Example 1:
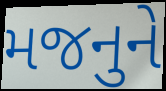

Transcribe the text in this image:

મજનુને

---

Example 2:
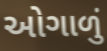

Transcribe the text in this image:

ઓગાળું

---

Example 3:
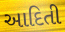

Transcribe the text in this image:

આદિતી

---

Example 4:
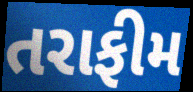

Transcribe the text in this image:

તરાફીમ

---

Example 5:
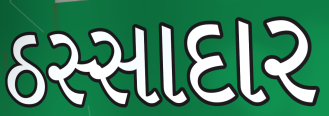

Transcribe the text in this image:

ઠસ્સાદાર